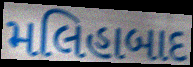
મલિહાબાદ